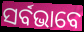
ସର୍ବଭାବେ